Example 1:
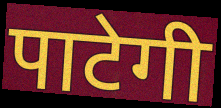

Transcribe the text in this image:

पाटेगी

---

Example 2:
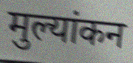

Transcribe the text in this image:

मुल्यांकन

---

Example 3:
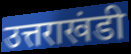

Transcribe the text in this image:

उत्तराखंडी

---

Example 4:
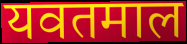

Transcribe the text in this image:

यवतमाल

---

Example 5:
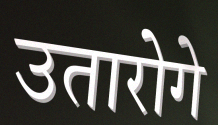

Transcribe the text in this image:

उतारोगे